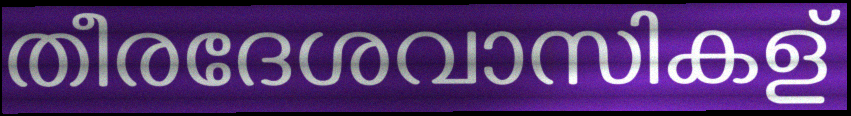
തീരദേശവാസികള്